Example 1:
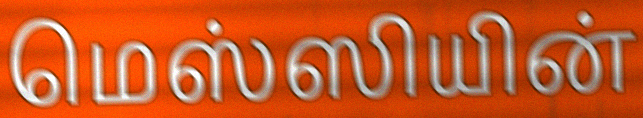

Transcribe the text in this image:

மெஸ்ஸியின்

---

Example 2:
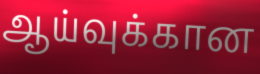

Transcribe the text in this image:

ஆய்வுக்கான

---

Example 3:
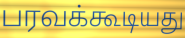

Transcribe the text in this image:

பரவக்கூடியது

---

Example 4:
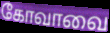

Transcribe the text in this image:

கோவாவை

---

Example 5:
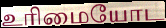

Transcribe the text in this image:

உரிமையோட